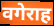
वगेराह